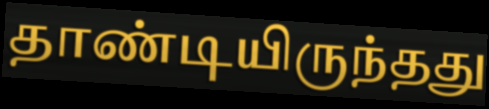
தாண்டியிருந்தது